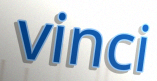
vinci